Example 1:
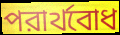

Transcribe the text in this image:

পরার্থবোধ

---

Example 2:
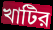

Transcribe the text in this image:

খাটির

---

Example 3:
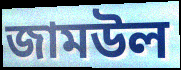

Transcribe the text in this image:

জামউল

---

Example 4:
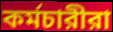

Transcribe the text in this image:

কর্মচারীরা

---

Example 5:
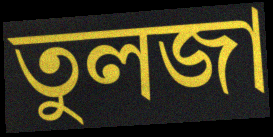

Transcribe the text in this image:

তুলজা